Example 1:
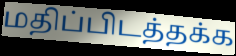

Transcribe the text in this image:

மதிப்பிடத்தக்க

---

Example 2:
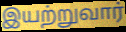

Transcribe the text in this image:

இயற்றுவார்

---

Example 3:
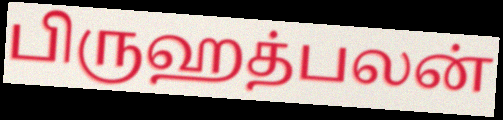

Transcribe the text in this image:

பிருஹத்பலன்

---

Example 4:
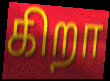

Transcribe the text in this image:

கிறா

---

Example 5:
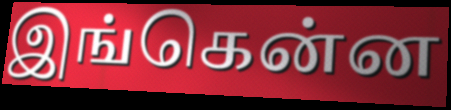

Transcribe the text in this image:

இங்கென்ன